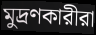
মুদ্রণকারীরা